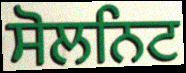
ਸੋਲਨਿਟ